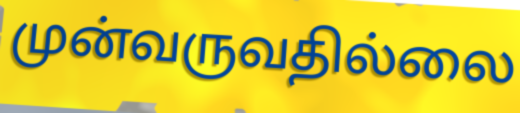
முன்வருவதில்லை